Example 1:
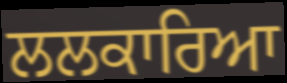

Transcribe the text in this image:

ਲਲਕਾਰਿਆ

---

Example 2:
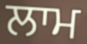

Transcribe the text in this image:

ਲਾਮ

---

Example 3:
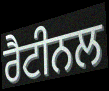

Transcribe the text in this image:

ਰੈਟੀਨਲ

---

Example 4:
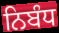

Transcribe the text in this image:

ਨਿਬੰਧ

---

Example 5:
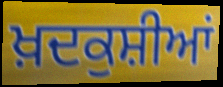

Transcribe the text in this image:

ਖ਼ਦਕੁਸ਼ੀਆਂ